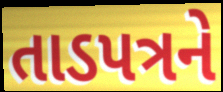
તાડપત્રને